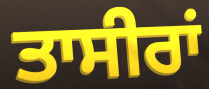
ਤਾਸੀਰਾਂ